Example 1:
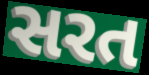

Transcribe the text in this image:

સરત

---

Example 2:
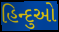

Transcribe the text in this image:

હિન્દુઓ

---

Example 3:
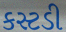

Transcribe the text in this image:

કસ્ટડી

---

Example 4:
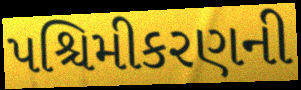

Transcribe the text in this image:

પશ્ચિમીકરણની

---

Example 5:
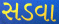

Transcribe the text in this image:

સડવા